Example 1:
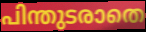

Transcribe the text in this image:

പിന്തുടരാതെ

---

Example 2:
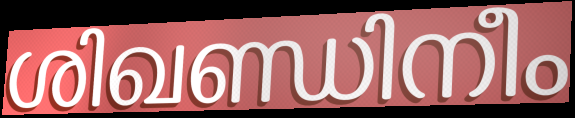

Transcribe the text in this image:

ശിഖണ്ഡിനീം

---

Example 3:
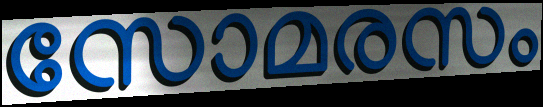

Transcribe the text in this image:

സോമരസം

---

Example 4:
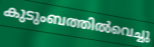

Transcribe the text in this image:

കുടുംബത്തിൽവെച്ചു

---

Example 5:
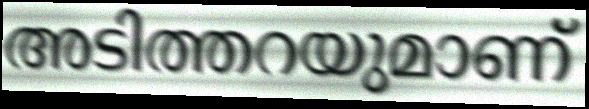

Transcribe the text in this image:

അടിത്തറയുമാണ്